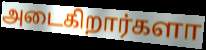
அடைகிறார்களா